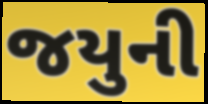
જયુની